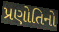
પ્રણોતિનો